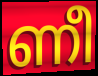
ണീ